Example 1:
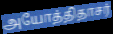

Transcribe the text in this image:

அயோத்திதாசர்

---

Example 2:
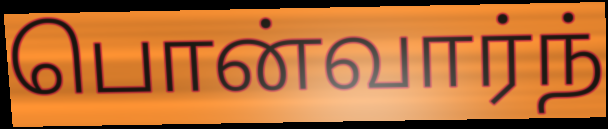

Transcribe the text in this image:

பொன்வார்ந்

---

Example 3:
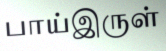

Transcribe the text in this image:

பாய்இருள்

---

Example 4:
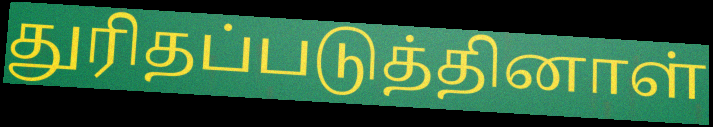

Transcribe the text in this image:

துரிதப்படுத்தினாள்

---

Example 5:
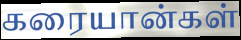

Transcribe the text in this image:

கரையான்கள்